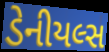
ડેનીયલ્સ